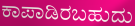
ಕಾಪಾಡಿರಬಹುದು